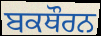
ਬਕਥੌਰਨ